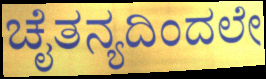
ಚೈತನ್ಯದಿಂದಲೇ